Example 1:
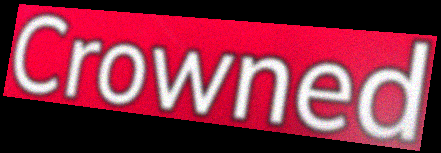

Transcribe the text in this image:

Crowned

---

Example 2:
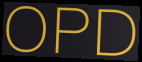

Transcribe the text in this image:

OPD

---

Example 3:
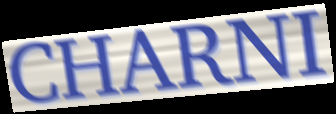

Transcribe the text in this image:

CHARNI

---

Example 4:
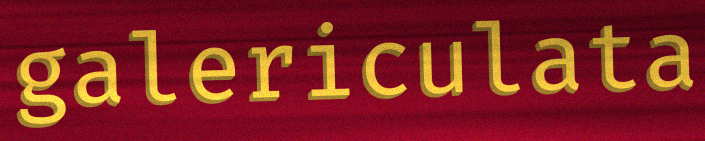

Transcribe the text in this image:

galericulata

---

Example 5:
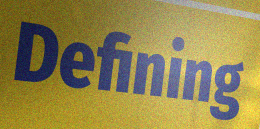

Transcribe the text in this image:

Defining